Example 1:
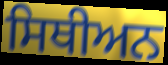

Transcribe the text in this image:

ਸਿਥੀਅਨ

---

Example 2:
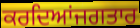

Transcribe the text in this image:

ਕਰਦਿਆਂਜਗਤਾਰ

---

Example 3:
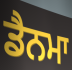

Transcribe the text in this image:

ਡੈਨਮਾ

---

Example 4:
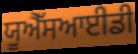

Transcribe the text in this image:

ਯੂਐੱਸਆਈਡੀ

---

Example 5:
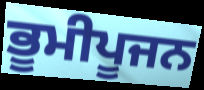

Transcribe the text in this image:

ਭੂਮੀਪੂਜਨ